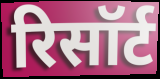
रिसॉर्ट